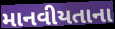
માનવીયતાના